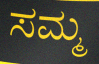
ಸಮ್ಮ